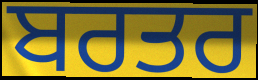
ਬਰਤਰ